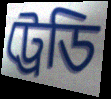
ট্রেডি